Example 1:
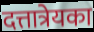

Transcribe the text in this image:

दत्तात्रेयका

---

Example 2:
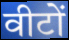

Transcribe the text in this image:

वीटों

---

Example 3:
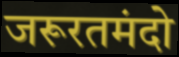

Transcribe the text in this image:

जरूरतमंदो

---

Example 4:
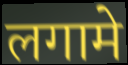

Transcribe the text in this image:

लगामे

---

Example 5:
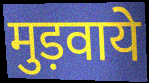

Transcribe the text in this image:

मुड़वाये